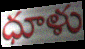
ధూళు